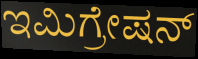
ಇಮಿಗ್ರೇಷನ್